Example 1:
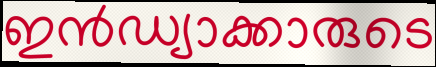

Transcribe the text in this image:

ഇൻഡ്യാക്കാരുടെ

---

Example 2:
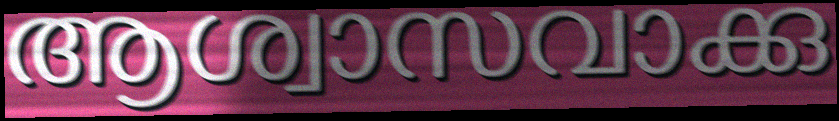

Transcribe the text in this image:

ആശ്വാസവാക്കു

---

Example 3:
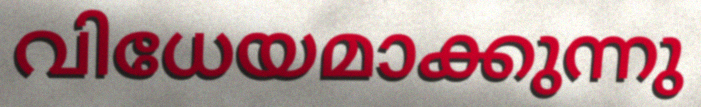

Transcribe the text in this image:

വിധേയമാക്കുന്നു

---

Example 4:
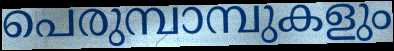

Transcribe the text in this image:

പെരുമ്പാമ്പുകളും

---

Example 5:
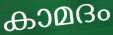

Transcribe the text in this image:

കാമദം